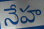
నేహ